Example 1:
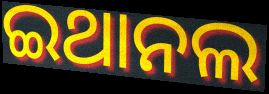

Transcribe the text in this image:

ଇଥାନଲ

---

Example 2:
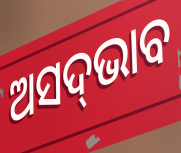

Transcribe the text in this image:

ଅସଦ୍‌ଭାବ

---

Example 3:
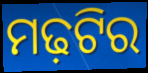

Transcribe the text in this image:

ମଢ଼ଟିର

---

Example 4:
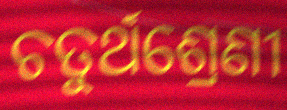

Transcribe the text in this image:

ଚତୁର୍ଥଶ୍ରେଣୀ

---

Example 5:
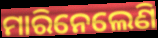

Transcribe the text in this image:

ମାରିନେଲେଣି